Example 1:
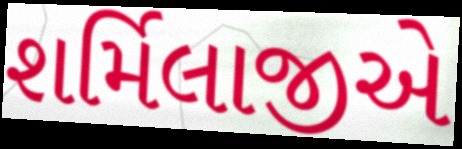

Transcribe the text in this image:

શર્મિલાજીએ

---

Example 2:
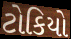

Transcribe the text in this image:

ટોકિયો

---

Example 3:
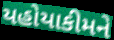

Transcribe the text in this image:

યહોયાકીમને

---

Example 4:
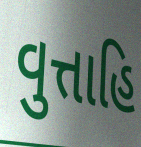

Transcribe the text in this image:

વુત્તાહિ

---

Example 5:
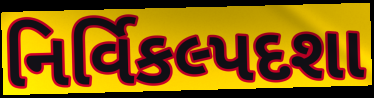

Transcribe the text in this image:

નિર્વિકલ્પદશા